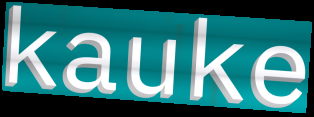
kauke